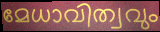
മേധാവിത്വവും